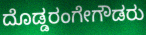
ದೊಡ್ಡರಂಗೇಗೌಡರು